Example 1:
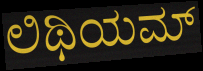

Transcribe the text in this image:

ಲಿಥಿಯಮ್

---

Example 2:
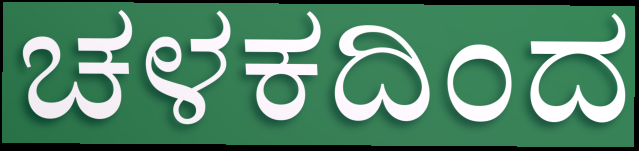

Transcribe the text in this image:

ಚಳಕದಿಂದ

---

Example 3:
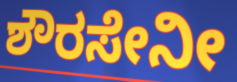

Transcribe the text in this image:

ಶೌರಸೇನೀ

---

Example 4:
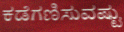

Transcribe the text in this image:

ಕಡೆಗಣಿಸುವಷ್ಟು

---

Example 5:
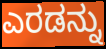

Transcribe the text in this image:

ಎರಡನ್ನು